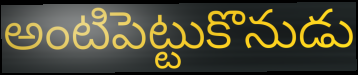
అంటిపెట్టుకొనుడు